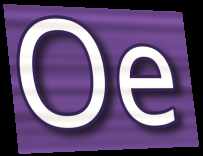
Oe